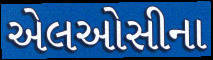
એલઓસીના